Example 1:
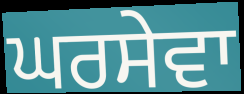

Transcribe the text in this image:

ਘਰਸੇਵਾ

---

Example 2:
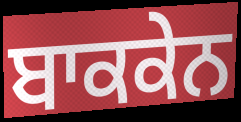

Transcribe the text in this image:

ਬਾਕਕੇਨ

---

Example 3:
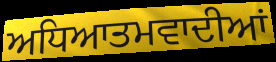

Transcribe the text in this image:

ਅਧਿਆਤਮਵਾਦੀਆਂ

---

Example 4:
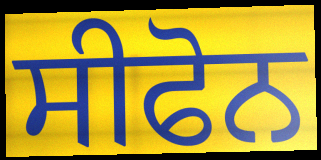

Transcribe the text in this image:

ਸੀਫੋਨ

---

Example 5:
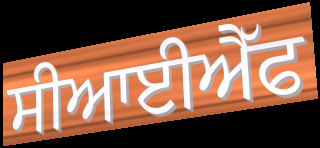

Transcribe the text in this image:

ਸੀਆਈਐੱਫ